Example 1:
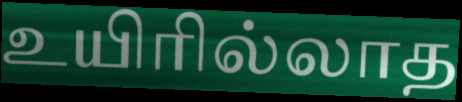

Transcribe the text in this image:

உயிரில்லாத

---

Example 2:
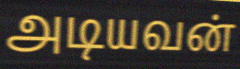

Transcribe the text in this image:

அடியவன்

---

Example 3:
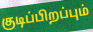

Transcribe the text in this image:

குடிப்பிறப்பும்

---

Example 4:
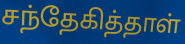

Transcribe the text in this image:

சந்தேகித்தாள்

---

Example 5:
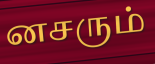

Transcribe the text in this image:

னசரும்